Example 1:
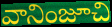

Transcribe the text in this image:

వానింజూచి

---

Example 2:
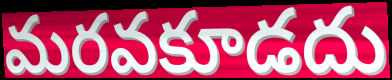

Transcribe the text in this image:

మరవకూడదు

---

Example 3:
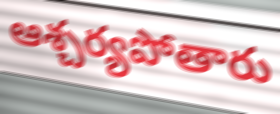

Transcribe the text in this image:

ఆశ్చర్యపోతారు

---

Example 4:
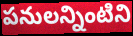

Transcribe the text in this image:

పనులన్నింటిని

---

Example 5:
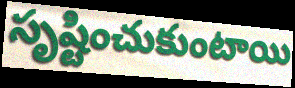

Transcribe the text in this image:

సృష్టించుకుంటాయి